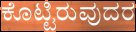
ಕೊಟ್ಟಿರುವುದರ